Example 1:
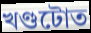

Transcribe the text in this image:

খণ্ডটোত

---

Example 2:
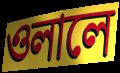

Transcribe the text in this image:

ওলালে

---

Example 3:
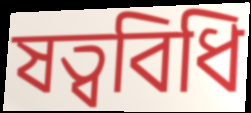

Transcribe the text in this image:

ষত্ববিধি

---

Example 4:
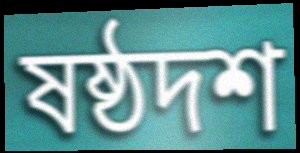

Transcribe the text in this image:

ষষ্ঠদশ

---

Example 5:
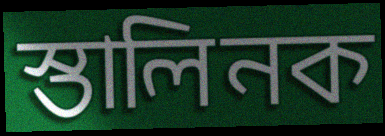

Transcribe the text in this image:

স্তালিনক